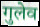
गुलेव